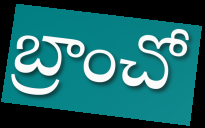
బ్రాంచో